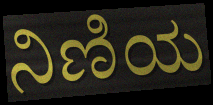
ನಿಣಿಯ